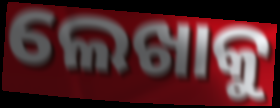
ଲେଖାକୁ